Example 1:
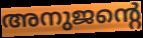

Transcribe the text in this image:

അനുജന്റെ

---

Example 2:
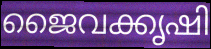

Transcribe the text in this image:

ജൈവക്കൃഷി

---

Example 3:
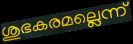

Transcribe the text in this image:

ശുഭകരമല്ലെന്ന്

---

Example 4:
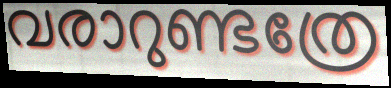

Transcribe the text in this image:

വരാറുണ്ടത്രേ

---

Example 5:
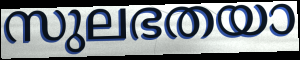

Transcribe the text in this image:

സുലഭതയാ